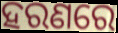
ହରଣରେ